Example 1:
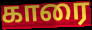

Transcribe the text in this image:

காரை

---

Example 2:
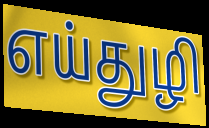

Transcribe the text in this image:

எய்துழி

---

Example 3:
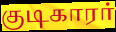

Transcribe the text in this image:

குடிகாரர்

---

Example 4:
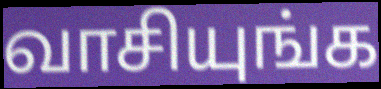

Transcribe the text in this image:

வாசியுங்க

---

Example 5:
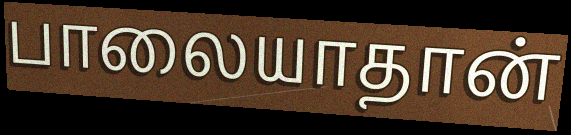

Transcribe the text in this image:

பாலையாதான்